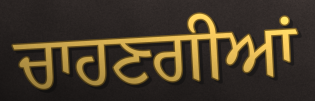
ਚਾਹਣਗੀਆਂ